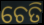
ଚେତି